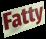
Fatty